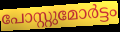
പോസ്റ്റുമോർട്ടം